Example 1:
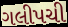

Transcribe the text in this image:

ગલીપચી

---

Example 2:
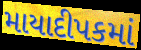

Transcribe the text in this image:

માયાદીપકમાં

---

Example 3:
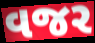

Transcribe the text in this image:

વજર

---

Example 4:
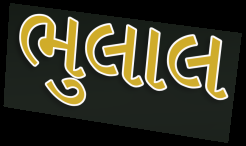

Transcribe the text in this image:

ભુલાલ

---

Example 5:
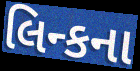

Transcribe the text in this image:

લિન્કના